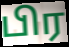
பிர